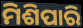
ମିଶିପାରି